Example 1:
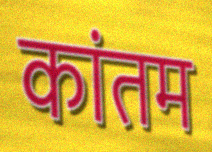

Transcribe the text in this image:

कांतम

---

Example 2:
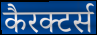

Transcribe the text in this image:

कैरक्टर्स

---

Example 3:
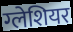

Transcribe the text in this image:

ग्लेशियर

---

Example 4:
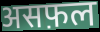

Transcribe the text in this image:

असफ़ल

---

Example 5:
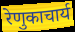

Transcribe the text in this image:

रेणुकाचार्य